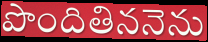
పొందితిననెను